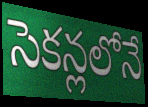
సెకన్లలోనే